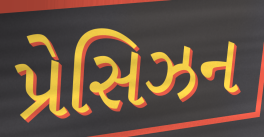
પ્રેસિઝન